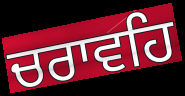
ਚਰਾਵਹਿ